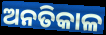
ଅନତିକାଳ